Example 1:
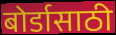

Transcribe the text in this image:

बोर्डासाठी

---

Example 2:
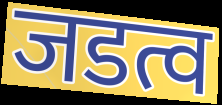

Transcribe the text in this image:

जडत्व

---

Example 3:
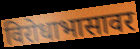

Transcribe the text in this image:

विरोधाभासावर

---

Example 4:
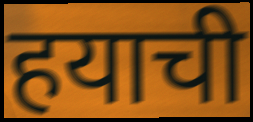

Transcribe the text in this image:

हयाची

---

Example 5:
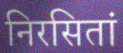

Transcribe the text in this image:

निरसितां